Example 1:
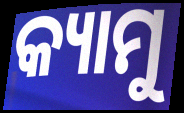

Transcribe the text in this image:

କ୍ୟାମୁ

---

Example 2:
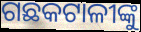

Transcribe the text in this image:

ଗଛକଟାଳୀଙ୍କୁ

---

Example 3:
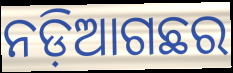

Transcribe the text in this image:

ନଡ଼ିଆଗଛର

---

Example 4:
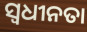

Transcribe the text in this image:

ସ୍ୱଧୀନତା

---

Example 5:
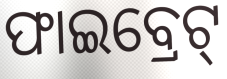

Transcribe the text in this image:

ଫାଇବ୍ରେଟ୍